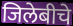
जिलेबीचे